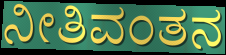
ನೀತಿವಂತನ